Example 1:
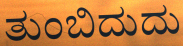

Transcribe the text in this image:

ತುಂಬಿದುದು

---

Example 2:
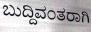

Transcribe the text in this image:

ಬುದ್ದಿವಂತರಾಗಿ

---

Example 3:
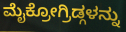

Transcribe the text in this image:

ಮೈಕ್ರೋಗ್ರಿಡ್ಗಳನ್ನು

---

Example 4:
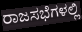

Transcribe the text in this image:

ರಾಜಸಭೆಗಳಲ್ಲಿ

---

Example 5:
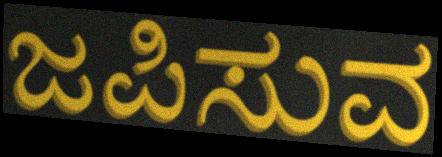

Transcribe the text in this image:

ಜಪಿಸುವ